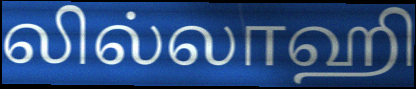
லில்லாஹி